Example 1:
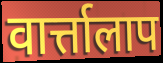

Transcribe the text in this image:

वार्त्तालाप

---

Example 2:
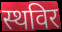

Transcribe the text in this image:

स्थविर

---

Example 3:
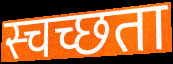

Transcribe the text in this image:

स्चच्छता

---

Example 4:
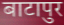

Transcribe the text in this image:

बाटापुर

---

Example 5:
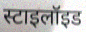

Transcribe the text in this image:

स्टाइलॉइड